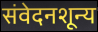
संवेदनशून्य